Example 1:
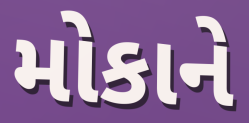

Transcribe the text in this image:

મોકાને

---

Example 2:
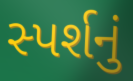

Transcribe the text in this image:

સ્પર્શનું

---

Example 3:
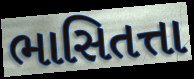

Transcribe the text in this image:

ભાસિતત્તા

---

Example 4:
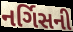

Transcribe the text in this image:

નર્ગિસની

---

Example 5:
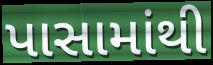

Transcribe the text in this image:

પાસામાંથી